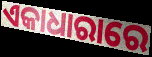
ଏକାଧାରାରେ